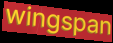
wingspan